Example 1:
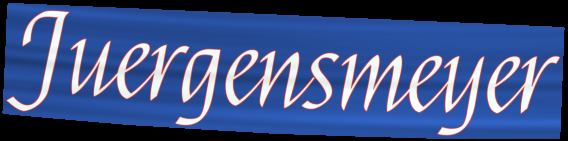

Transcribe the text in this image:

Juergensmeyer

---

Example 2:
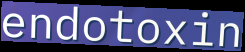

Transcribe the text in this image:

endotoxin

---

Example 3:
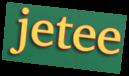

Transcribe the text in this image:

jetee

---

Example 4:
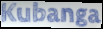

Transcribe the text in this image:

Kubanga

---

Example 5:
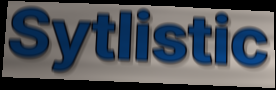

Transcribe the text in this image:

Sytlistic